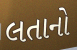
લતાનો